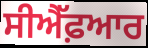
ਸੀਐੱਫ਼ਆਰ